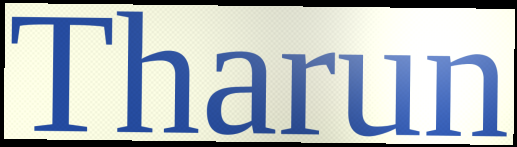
Tharun